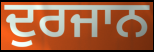
ਦੁਰਜਾਨ